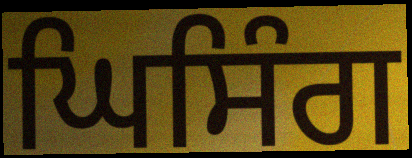
ਘਿਸਿੰਗ